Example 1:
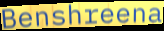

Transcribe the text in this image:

Benshreena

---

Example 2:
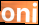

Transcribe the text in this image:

oni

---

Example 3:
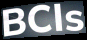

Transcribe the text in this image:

BCIs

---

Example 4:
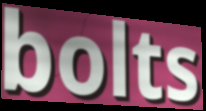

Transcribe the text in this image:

bolts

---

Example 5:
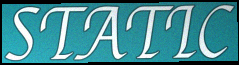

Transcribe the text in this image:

STATIC